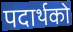
पदार्थको